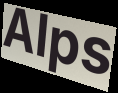
Alps